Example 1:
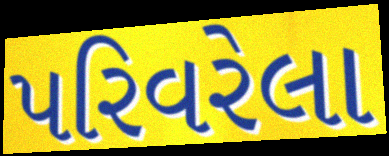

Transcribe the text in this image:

પરિવરેલા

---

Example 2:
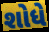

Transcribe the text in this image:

શોધે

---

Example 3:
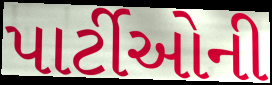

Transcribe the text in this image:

પાર્ટીઓની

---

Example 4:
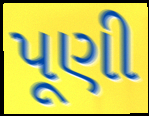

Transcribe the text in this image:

પૂણી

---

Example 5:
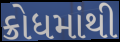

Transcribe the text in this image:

ક્રોધમાંથી